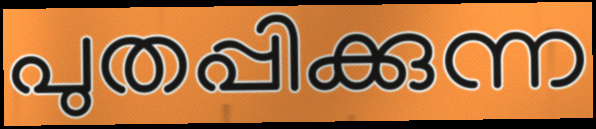
പുതപ്പിക്കുന്ന